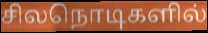
சிலநொடிகளில்